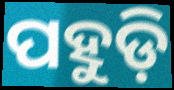
ପହୁଡ଼ି